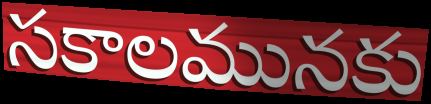
సకాలమునకు